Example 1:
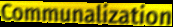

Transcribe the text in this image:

Communalization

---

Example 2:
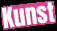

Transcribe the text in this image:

Kunst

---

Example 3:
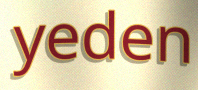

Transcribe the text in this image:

yeden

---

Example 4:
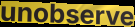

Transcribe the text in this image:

unobserve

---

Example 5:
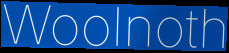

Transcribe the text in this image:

Woolnoth